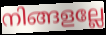
നിങ്ങളല്ലേ